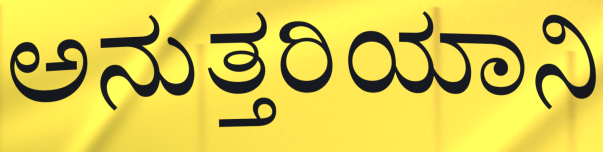
ಅನುತ್ತರಿಯಾನಿ